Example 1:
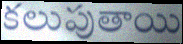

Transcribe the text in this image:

కలుపుతాయి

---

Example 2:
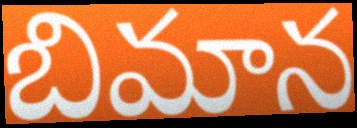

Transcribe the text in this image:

బిమాన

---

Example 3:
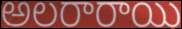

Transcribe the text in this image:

అలరారాయి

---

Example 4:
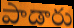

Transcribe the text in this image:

పాడారు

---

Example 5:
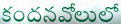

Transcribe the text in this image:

కందనవోలులో